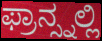
ಫ್ರಾನ್ಸ್ನಲ್ಲಿ